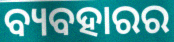
ବ୍ୟବହାରର